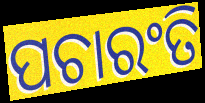
ପଚାରଂତି